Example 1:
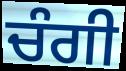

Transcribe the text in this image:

ਚੰਗੀ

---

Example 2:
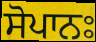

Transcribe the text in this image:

ਸੋਪਾਨਃ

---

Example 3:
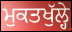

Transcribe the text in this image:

ਮੁਕਤਖੁੱਲ੍ਹੇ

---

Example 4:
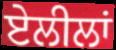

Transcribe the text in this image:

ਏਲੀਲਾਂ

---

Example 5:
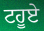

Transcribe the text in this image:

ਟਹੂਏ